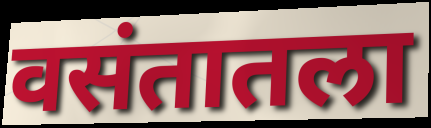
वसंतातला